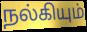
நல்கியும்